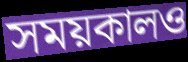
সময়কালও